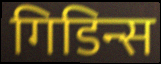
गिडिन्स